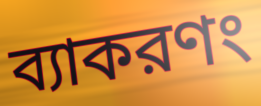
ব্যাকরণং